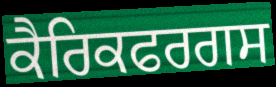
ਕੈਰਿਕਫਰਗਸ